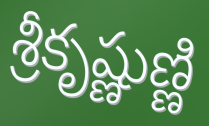
శ్రీకృష్ణుణ్ణి